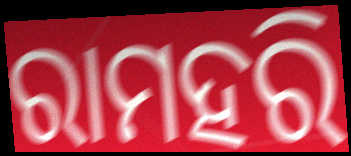
ରାମହରି